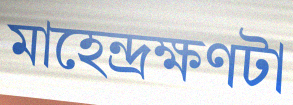
মাহেন্দ্রক্ষণটা